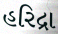
હરિદ્રા